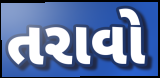
તરાવો